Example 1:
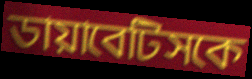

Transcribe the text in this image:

ডায়াবেটিসকে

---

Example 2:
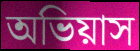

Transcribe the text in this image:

অভিয়াস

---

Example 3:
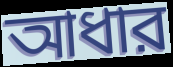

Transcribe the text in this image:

আধার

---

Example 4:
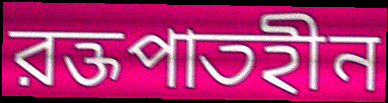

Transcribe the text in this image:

রক্তপাতহীন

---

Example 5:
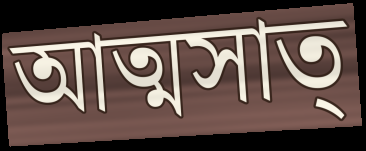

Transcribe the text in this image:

আত্মসাত্